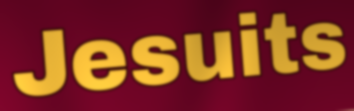
Jesuits